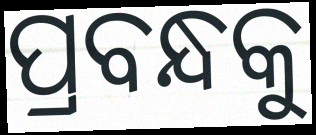
ପ୍ରବନ୍ଧକୁ